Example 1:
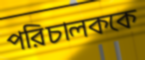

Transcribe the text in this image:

পরিচালককে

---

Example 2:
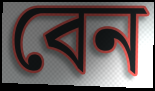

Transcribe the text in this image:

বেন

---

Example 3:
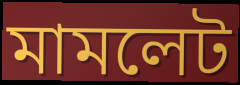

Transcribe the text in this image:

মামলেট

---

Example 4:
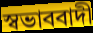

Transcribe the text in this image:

স্বভাববাদী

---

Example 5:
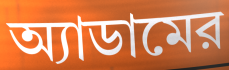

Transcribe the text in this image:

অ্যাডামের